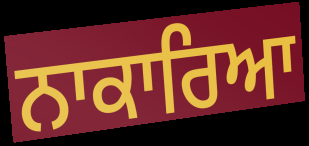
ਨਾਕਾਰਿਆ